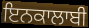
ਇਨਕਾਲਾਬੀ